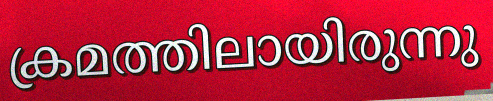
ക്രമത്തിലായിരുന്നു